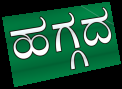
ಹಗ್ಗದ